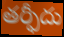
తర్ఫీదు